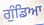
ਗੁੰਡਿਆ